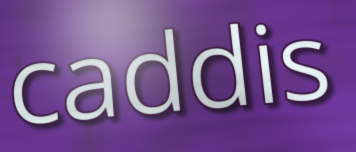
caddis